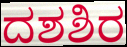
ದಶಶಿರ